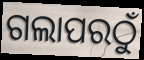
ଗଲାପରଠୁଁ